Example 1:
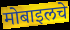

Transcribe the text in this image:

मोबाइलचे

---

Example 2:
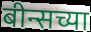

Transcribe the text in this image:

बीन्सच्या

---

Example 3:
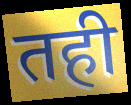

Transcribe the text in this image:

तही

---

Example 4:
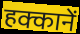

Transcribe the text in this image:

हक्कानें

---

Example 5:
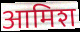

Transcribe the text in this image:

आमिश